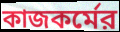
কাজকর্মের